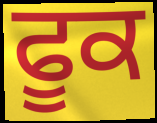
ਫੂਕ